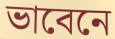
ভাবেনে